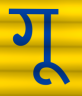
गू